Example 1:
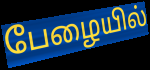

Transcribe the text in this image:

பேழையில்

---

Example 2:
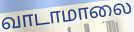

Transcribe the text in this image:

வாடாமாலை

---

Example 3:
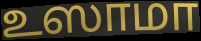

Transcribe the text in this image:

உஸாமா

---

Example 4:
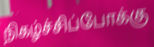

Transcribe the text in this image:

நிகழ்ச்சிப்போக்கு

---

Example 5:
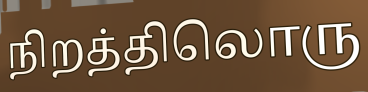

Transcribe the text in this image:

நிறத்திலொரு